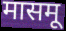
मासमू